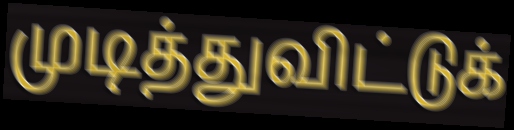
முடித்துவிட்டுக்